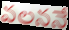
వలననే